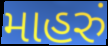
માહરું